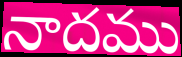
నాదము